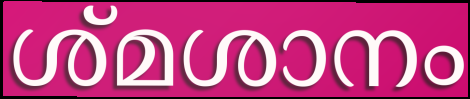
ശ്മശാനം